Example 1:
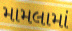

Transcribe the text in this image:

મામલામાં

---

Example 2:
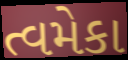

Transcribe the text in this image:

ત્વમેકા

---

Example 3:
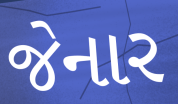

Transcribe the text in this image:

જેનાર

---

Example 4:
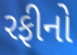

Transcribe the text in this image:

રફીનો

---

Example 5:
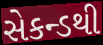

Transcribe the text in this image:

સેકન્ડથી